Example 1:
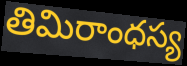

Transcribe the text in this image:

తిమిరాంధస్య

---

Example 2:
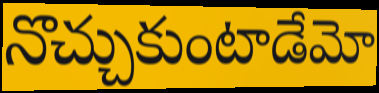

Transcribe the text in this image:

నొచ్చుకుంటాడేమో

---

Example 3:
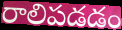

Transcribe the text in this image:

రాలిపడడం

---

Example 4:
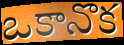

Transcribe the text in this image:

ఒకానొక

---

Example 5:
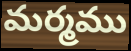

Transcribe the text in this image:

మర్మము